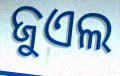
ଜୁଏଲ